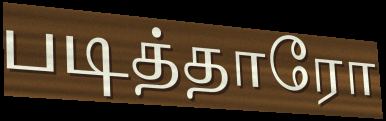
படித்தாரோ